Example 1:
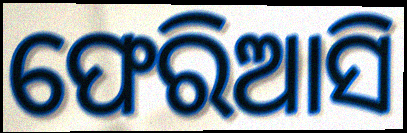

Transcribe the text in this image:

ଫେରିଆସି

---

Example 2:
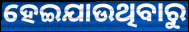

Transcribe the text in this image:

ହେଇଯାଉଥିବାରୁ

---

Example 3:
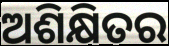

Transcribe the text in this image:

ଅଶିକ୍ଷିତର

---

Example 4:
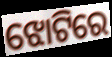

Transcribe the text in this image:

ଝୋଟିରେ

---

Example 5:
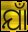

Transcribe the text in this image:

ଯାଁ